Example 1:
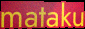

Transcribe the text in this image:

mataku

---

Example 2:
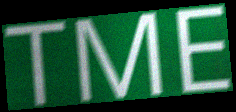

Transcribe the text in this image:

TME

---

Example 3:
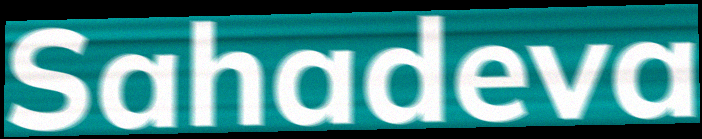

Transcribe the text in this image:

Sahadeva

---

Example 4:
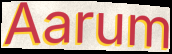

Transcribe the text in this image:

Aarum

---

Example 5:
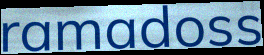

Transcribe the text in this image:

ramadoss